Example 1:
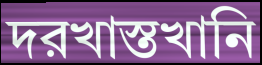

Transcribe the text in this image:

দরখাস্তখানি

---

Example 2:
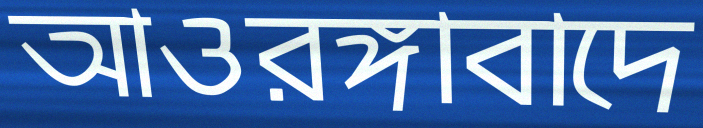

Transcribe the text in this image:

আওরঙ্গাবাদে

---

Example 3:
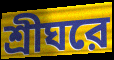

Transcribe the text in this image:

শ্রীঘরে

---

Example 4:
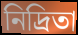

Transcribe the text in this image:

নিদ্রিতা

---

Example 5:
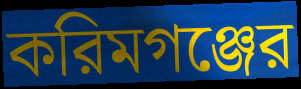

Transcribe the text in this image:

করিমগঞ্জের